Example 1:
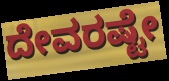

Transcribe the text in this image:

ದೇವರಷ್ಟೇ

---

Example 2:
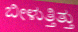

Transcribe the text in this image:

ಬೀಳುತ್ತಿತ್ತು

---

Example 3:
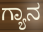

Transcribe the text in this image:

ಗ್ಯಾನ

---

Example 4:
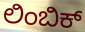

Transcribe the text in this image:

ಲಿಂಬಿಕ್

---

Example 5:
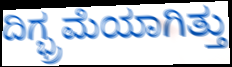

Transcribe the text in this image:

ದಿಗ್ಭ್ರಮೆಯಾಗಿತ್ತು